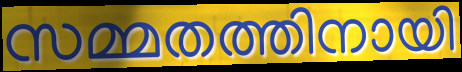
സമ്മതത്തിനായി